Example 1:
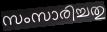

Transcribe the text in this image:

സംസാരിച്ചതു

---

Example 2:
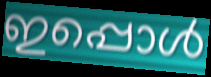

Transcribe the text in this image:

ഇപ്പൊൾ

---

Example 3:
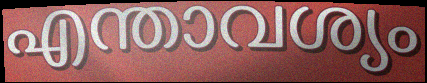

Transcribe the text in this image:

എന്താവശ്യം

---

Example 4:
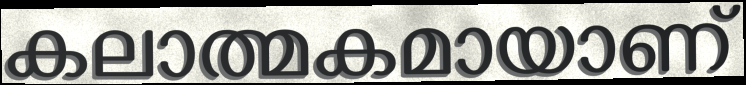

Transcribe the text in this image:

കലാത്മകമായാണ്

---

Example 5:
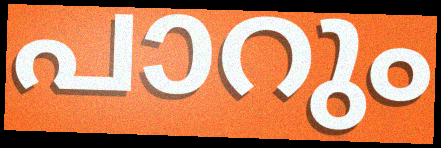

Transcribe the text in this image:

പാറും